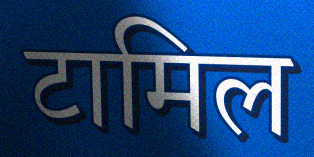
टामिल